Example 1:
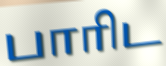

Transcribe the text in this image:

பாரிட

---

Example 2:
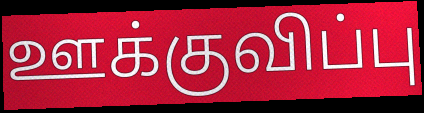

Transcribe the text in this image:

ஊக்குவிப்பு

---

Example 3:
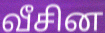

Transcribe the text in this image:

வீசின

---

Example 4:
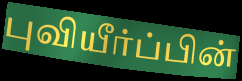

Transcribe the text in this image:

புவியீர்ப்பின்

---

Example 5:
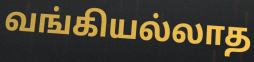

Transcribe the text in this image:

வங்கியல்லாத